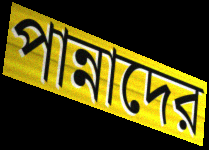
পান্নাদের